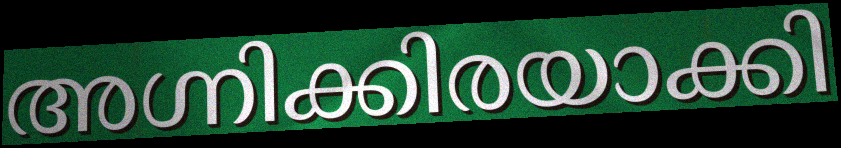
അഗ്നിക്കിരയാക്കി